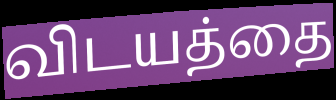
விடயத்தை